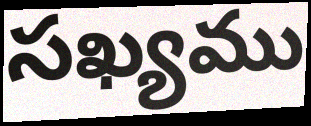
సఖ్యము